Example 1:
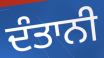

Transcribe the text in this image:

ਦੰਤਾਨੀ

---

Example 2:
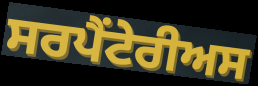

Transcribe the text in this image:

ਸਰਪੈਂਟੇਰੀਅਸ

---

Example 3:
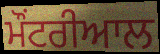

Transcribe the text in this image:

ਮੌਂਟਰੀਆਲ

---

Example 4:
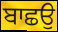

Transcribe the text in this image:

ਬਾਛਉ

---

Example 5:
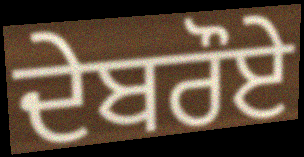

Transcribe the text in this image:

ਦੇਬਰੌਏ